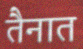
तैनात